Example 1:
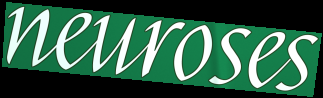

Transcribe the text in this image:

neuroses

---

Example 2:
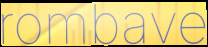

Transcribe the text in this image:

rombave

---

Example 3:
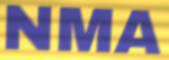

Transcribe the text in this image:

NMA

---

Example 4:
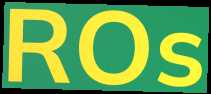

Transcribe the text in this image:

ROs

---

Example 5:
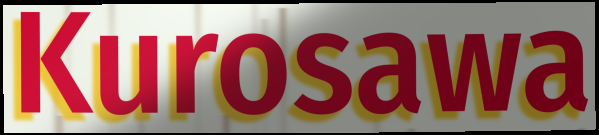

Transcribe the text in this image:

Kurosawa